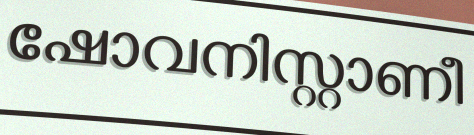
ഷോവനിസ്റ്റാണീ